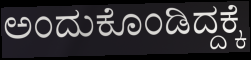
ಅಂದುಕೊಂಡಿದ್ದಕ್ಕೆ